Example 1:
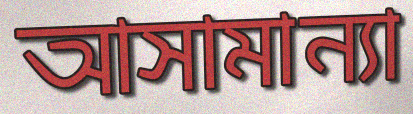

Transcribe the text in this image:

আসামান্যা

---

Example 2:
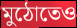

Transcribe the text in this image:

মুঠোতেও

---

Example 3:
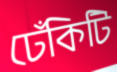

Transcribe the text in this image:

ঢেঁকিটি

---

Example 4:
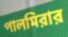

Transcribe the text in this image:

পালমিরার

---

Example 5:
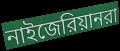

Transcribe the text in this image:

নাইজেরিয়ানরা